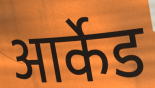
आर्केड